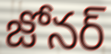
జోనర్